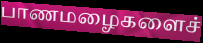
பாணமழைகளைச்